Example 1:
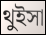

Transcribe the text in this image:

থুইসা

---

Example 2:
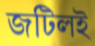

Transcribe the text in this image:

জটিলই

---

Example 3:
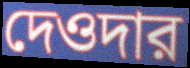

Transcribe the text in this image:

দেওদার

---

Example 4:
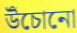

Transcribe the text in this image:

উঁচোনো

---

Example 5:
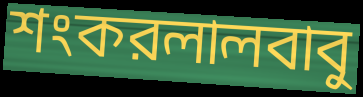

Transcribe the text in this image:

শংকরলালবাবু